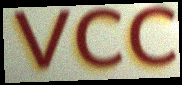
vcc